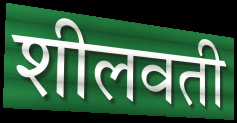
शीलवती